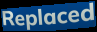
Replaced